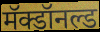
मॅक्डॉनल्ड